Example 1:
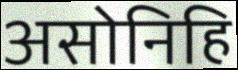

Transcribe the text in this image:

असोनिहि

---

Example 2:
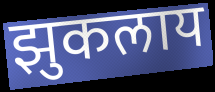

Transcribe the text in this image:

झुकलाय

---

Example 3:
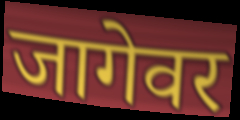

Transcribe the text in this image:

जागेवर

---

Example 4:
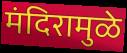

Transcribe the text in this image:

मंदिरामुळे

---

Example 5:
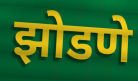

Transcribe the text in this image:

झोडणे